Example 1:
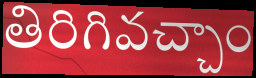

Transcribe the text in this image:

తిరిగివచ్చాం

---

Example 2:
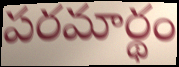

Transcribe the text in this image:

పరమార్థం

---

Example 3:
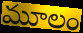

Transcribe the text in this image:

మూలం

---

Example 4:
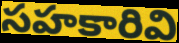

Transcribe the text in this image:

సహకారివి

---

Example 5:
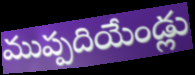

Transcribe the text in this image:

ముప్పదియేండ్లు